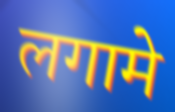
लगामे